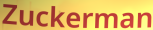
Zuckerman